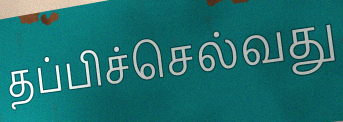
தப்பிச்செல்வது